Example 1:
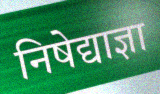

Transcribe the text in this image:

निषेद्याज्ञा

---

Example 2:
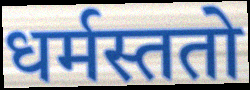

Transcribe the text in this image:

धर्मस्ततो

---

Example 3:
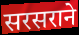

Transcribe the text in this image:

सरसराने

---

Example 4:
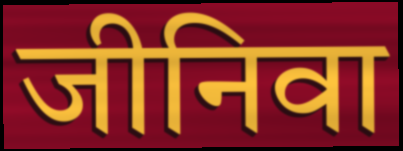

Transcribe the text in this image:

जीनिवा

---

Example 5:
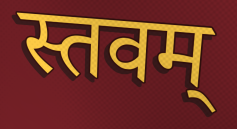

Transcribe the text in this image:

स्तवम्